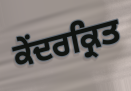
ਕੇਂਦਰਕ੍ਰਿਤ